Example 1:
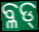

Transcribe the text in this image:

ବ୍ଳଡ୍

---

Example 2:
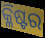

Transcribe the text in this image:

କ୍ଳିଷ୍ଟର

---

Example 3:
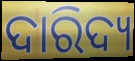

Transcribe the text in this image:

ଦାରିଦ୍ୟ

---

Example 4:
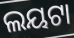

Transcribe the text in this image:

ଲୟଟା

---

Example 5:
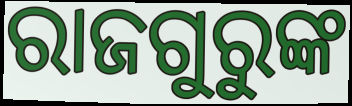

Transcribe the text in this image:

ରାଜଗୁରୁଙ୍କ